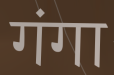
गंगा